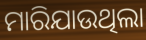
ମାରିଯାଉଥିଲା